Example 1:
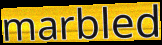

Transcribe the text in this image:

marbled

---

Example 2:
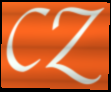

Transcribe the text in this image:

CZ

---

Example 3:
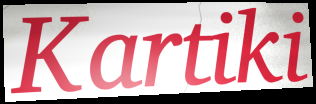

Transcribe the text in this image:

Kartiki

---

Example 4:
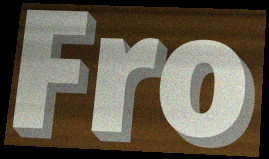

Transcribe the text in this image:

Fro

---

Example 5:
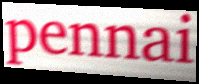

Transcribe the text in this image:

pennai